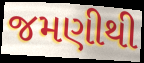
જમણીથી